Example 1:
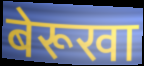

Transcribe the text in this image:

बेरूखा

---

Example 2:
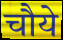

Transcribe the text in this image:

चौये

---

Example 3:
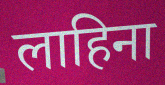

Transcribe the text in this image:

लाहिना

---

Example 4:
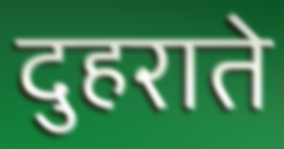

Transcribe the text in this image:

दुहराते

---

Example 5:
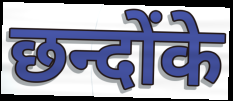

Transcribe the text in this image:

छन्दोंके